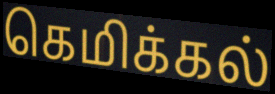
கெமிக்கல்